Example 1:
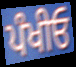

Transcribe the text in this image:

ਪੰਖੀਓ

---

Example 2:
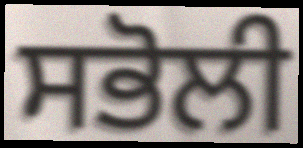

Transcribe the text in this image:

ਸਭੋਲੀ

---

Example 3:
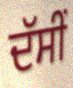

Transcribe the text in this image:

ਦੱਸੀਂ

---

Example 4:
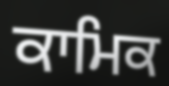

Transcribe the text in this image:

ਕਾਮਿਕ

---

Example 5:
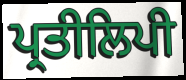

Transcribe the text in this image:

ਪ੍ਰਤੀਲਿਪੀ